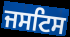
ਜਸਟਿਸ